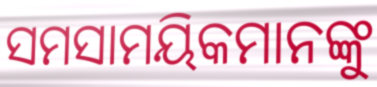
ସମସାମୟିକମାନଙ୍କୁ